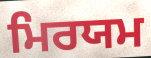
ਮਿਰਯਮ